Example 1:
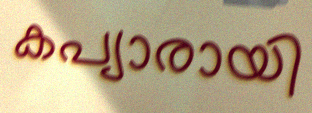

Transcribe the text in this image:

കപ്യാരായി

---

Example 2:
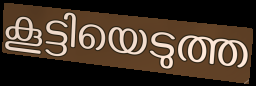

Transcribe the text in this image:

കൂട്ടിയെടുത്ത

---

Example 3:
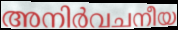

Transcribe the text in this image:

അനിർവചനീയ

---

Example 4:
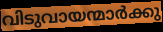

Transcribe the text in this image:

വിടുവായന്മാർക്കു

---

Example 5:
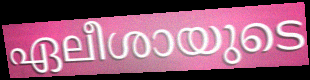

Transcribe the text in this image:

ഏലീശായുടെ